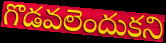
గొడవలెందుకని